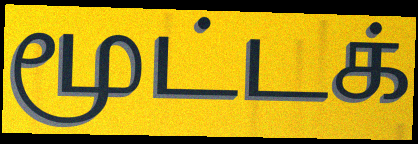
மூட்டக்